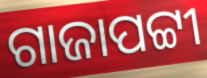
ଗାଜାପଟ୍ଟୀ